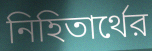
নিহিতার্থের